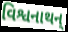
વિશ્વનાથન્